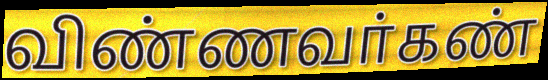
விண்ணவர்கண்